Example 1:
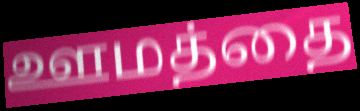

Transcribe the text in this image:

ஊமத்தை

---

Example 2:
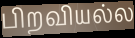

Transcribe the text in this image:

பிறவியல்ல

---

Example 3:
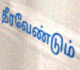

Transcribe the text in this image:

தீரவேண்டும்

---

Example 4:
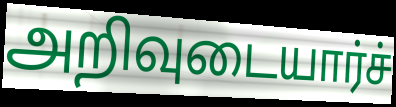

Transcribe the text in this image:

அறிவுடையார்ச்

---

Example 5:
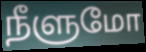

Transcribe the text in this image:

நீளுமோ